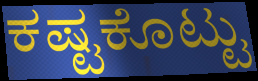
ಕಷ್ಟಕೊಟ್ಟು